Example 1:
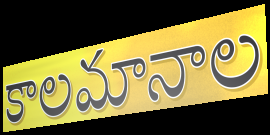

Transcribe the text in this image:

కాలమానాల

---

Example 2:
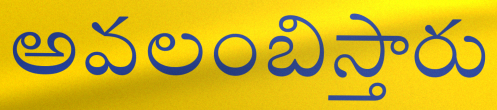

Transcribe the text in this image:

అవలంబిస్తారు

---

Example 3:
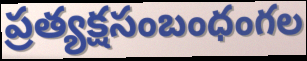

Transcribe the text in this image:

ప్రత్యక్షసంబంధంగల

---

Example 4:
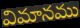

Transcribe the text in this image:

విమానము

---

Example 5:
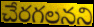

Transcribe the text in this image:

చేరగలనని